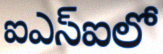
ఐఎస్ఐలో